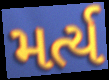
મર્ત્ય